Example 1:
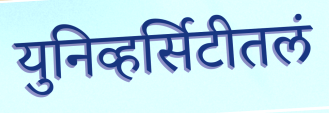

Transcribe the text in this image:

युनिव्हर्सिटीतलं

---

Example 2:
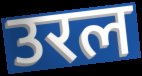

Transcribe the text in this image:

उरल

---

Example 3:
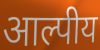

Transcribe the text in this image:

आल्पीय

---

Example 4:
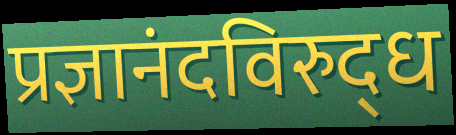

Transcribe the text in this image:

प्रज्ञानंदविरुद्ध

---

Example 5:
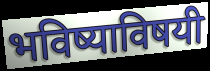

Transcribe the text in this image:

भविष्याविषयी